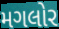
મગલોર